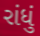
રાંધું